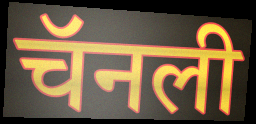
चॅनली